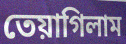
তেয়াগিলাম